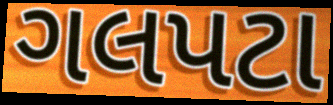
ગલપટા